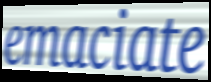
emaciate